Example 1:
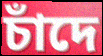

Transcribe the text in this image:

চাঁদে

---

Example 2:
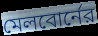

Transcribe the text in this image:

মেলবোর্নের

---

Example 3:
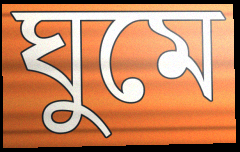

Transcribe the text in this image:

ঘুমে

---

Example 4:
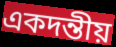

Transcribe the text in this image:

একদন্তীয়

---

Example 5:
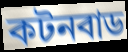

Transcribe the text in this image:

কটনবাড